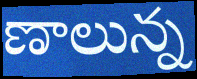
ణాలున్న